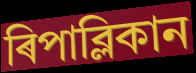
ৰিপাব্লিকান